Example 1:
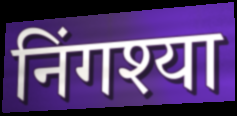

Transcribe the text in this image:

निंगश्या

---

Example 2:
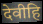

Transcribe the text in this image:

देवीहि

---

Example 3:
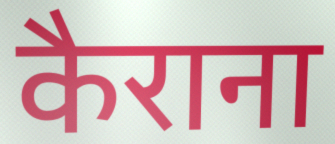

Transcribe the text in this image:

कैराना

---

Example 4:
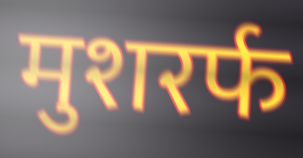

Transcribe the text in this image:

मुशरर्फ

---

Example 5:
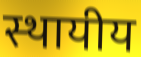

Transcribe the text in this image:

स्थायीय